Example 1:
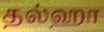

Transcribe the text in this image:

தல்ஹா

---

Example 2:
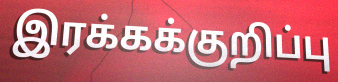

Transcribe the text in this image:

இரக்கக்குறிப்பு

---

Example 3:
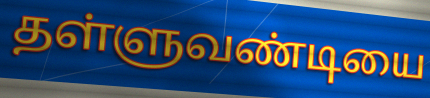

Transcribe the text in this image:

தள்ளுவண்டியை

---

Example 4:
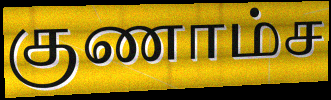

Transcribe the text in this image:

குணாம்ச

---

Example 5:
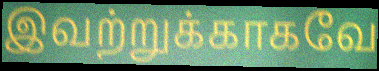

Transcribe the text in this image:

இவற்றுக்காகவே